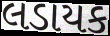
લડાયક